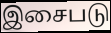
இசைபடு